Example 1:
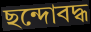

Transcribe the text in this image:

ছন্দোবদ্ধ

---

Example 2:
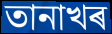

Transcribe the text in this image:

তানাখৰ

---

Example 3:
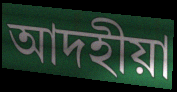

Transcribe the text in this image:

আদহীয়া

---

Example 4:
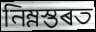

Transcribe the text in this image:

নিম্নস্তৰত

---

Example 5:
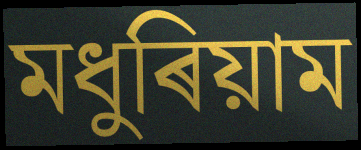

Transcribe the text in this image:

মধুৰিয়াম